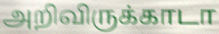
அறிவிருக்காடா